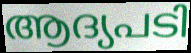
ആദ്യപടി